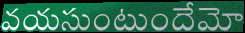
వయసుంటుందేమో